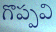
గొప్పవి